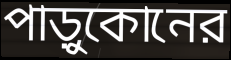
পাড়ুকোনের